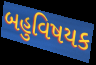
બહુવિષયક